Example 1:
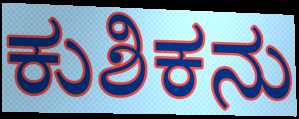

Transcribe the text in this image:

ಕುಶಿಕನು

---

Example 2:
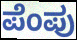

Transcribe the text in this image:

ಪೆಂಪು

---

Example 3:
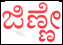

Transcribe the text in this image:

ಜಿಣ್ಣೇ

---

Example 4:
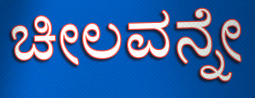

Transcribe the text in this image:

ಚೀಲವನ್ನೇ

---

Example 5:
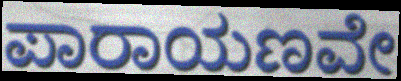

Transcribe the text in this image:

ಪಾರಾಯಣವೇ